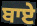
ਬਾਏ